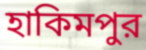
হাকিমপুর